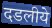
दडलीये